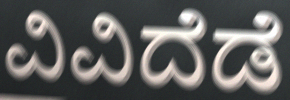
ವಿವಿದೆಡೆ